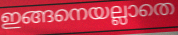
ഇങ്ങനെയല്ലാതെ